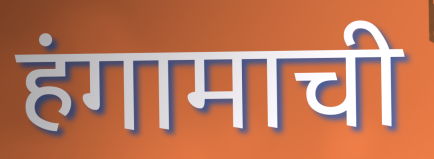
हंगामाची